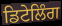
ਡਿਟੇਲਿੰਗ